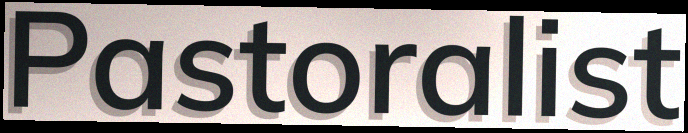
Pastoralist